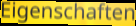
Eigenschaften